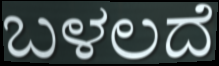
ಬಳಲದೆ